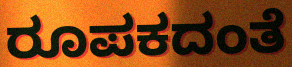
ರೂಪಕದಂತೆ